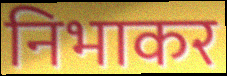
निभाकर